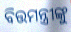
ବିତ୍ତମନ୍ତ୍ରୀଙ୍କୁ